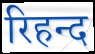
रिहन्द